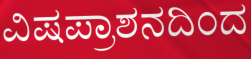
ವಿಷಪ್ರಾಶನದಿಂದ